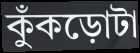
কুঁকড়োটা